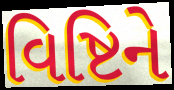
વિષ્ટિને